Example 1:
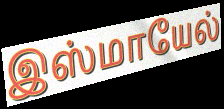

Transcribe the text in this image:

இஸ்மாயேல்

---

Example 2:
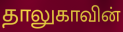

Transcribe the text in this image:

தாலுகாவின்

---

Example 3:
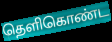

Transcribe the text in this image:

தெளிகொண்ட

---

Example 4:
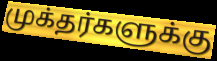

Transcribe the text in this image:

முக்தர்களுக்கு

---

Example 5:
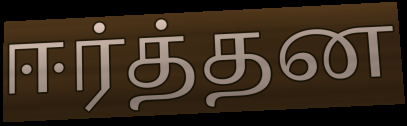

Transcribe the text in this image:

ஈர்த்தன